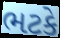
ભટકે